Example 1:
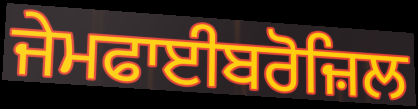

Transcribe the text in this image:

ਜੇਮਫਾਈਬਰੋਜ਼ਿਲ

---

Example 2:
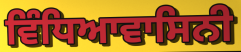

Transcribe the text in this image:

ਵਿੰਧਿਆਵਾਸਿਨੀ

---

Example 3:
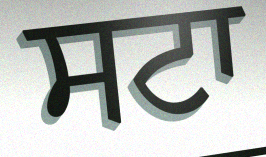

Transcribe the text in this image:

ਸਟਾ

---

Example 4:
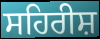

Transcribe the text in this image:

ਸਹਿਰੀਸ਼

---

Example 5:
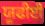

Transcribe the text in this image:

ਯੂਫੀਈ